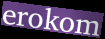
erokom